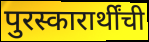
पुरस्कारार्थींची